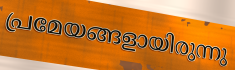
പ്രമേയങ്ങളായിരുന്നു